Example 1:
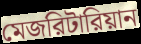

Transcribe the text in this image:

মেজরিটারিয়ান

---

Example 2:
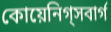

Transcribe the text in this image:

কোয়েনিগ্সবার্গ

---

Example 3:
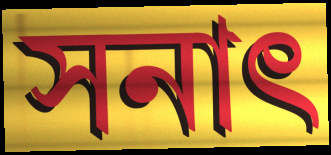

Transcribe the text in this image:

সনাৎ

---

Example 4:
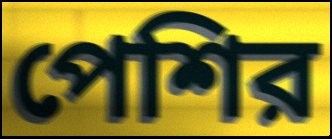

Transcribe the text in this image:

পেশির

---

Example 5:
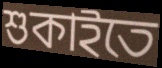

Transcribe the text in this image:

শুকাইতে